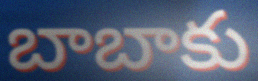
బాబాకు